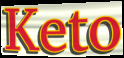
Keto